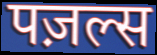
पज़ल्स